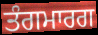
ਤੰਗਮਾਰਗ